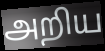
அறிய